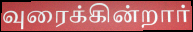
வுரைக்கின்றார்